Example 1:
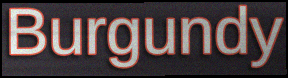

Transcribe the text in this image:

Burgundy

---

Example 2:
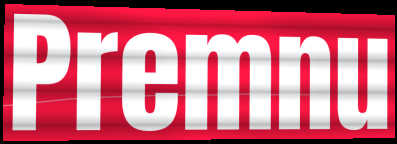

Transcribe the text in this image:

Premnu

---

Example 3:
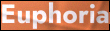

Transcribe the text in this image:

Euphoria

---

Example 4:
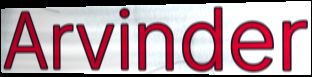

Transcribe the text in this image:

Arvinder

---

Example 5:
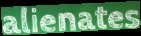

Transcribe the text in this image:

alienates